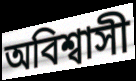
অবিশ্বাসী